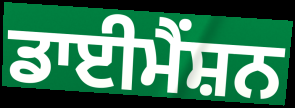
ਡਾਈਮੈਂਸ਼ਨ